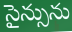
సైన్సును